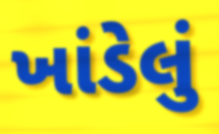
ખાંડેલું